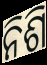
ନିଶି